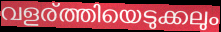
വളര്ത്തിയെടുക്കലും